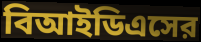
বিআইডিএসের